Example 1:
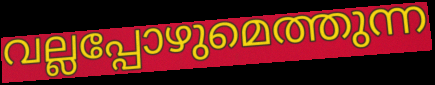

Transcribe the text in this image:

വല്ലപ്പോഴുമെത്തുന്ന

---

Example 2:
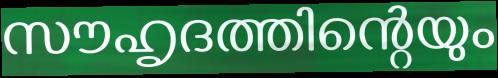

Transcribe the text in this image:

സൗഹൃദത്തിന്റെയും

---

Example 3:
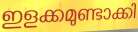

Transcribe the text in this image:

ഇളക്കമുണ്ടാക്കി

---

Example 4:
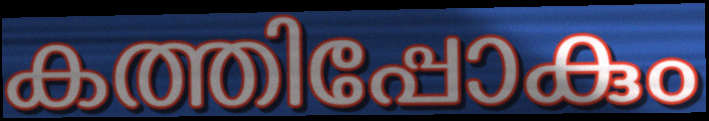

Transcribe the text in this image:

കത്തിപ്പോകും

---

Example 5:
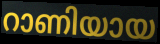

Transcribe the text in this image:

റാണിയായ